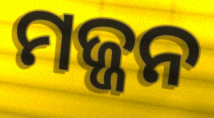
ମଜ୍ଜନ